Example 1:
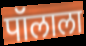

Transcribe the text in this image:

पॉलाला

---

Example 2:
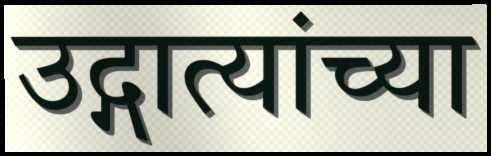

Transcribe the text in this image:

उद्गात्यांच्या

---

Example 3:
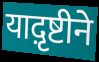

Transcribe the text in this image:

याद़ृष्टीने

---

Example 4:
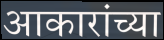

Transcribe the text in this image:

आकारांच्या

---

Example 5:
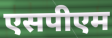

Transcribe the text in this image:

एसपीएम